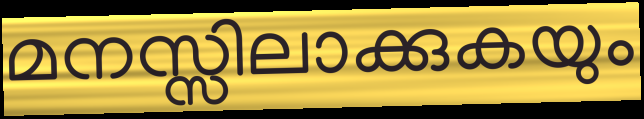
മനസ്സിലാക്കുകയും